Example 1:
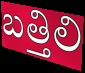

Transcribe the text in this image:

బత్తిలి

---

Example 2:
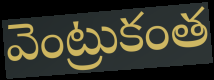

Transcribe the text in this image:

వెంట్రుకంత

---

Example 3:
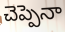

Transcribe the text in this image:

చెప్పెనా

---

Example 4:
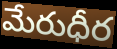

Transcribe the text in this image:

మేరుధీర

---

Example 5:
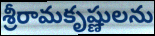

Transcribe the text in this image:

శ్రీరామకృష్ణులను